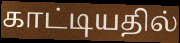
காட்டியதில்